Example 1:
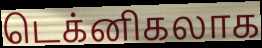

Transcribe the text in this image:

டெக்னிகலாக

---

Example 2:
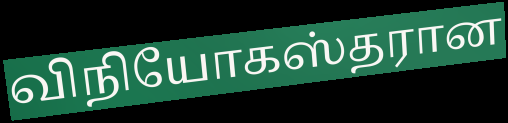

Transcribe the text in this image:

விநியோகஸ்தரான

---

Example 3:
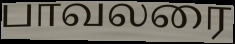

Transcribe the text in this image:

பாவலரை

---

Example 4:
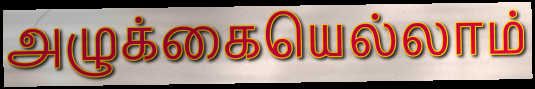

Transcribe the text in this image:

அழுக்கையெல்லாம்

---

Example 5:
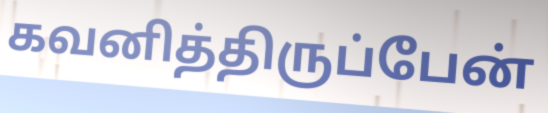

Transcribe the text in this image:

கவனித்திருப்பேன்